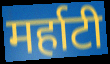
मर्हाटी